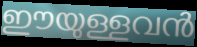
ഈയുള്ളവൻ